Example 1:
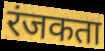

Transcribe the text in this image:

रंजकता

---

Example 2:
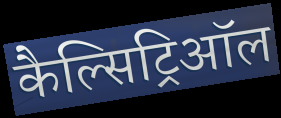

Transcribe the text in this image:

कैल्सिट्रिऑल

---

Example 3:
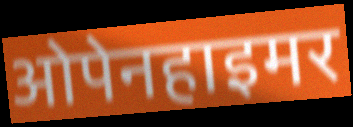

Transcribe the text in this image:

ओपेनहाइमर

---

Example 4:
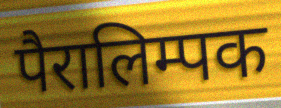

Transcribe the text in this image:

पैरालिम्पक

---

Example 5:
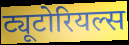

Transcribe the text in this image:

ट्यूटोरियल्स